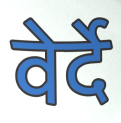
वेर्दे